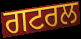
ਗਟਰਲ